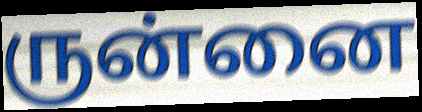
ருன்னை